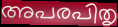
അപരപിതൃ